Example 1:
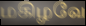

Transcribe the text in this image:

மகிழவே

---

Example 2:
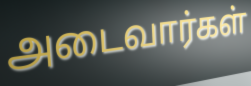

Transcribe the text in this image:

அடைவார்கள்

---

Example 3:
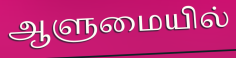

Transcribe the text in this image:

ஆளுமையில்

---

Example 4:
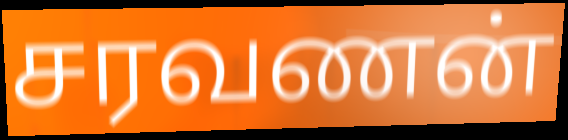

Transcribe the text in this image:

சரவணன்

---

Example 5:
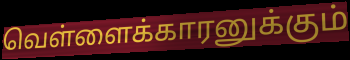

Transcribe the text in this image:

வெள்ளைக்காரனுக்கும்